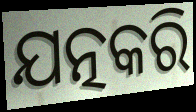
ଯତ୍ନକରି